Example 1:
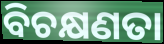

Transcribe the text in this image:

ବିଚକ୍ଷଣତା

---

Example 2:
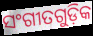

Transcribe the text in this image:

ସଂଗୀତଗୁଡ଼ିକ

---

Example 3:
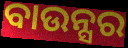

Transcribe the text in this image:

ବାଉନ୍ସର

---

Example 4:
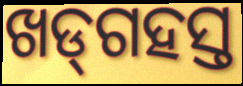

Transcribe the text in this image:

ଖଡ୍‌ଗହସ୍ତ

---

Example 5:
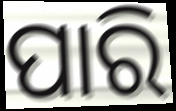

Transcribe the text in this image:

ପାରି